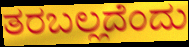
ತರಬಲ್ಲದೆಂದು